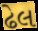
ઢેલ